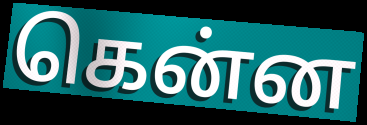
கென்ன